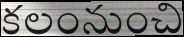
కలంనుంచి